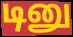
டினு